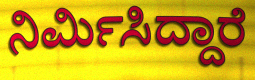
ನಿರ್ಮಿಸಿದ್ದಾರೆ